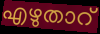
എഴുതാറ്